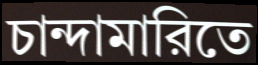
চান্দামারিতে